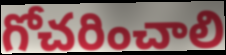
గోచరించాలి